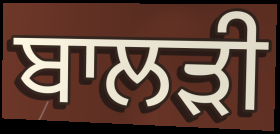
ਬਾਲੜੀ